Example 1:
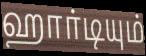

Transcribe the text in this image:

ஹார்டியும்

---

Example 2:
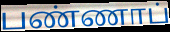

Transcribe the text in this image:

பண்ணாப்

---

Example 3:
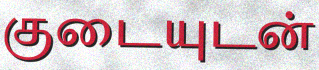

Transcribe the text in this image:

குடையுடன்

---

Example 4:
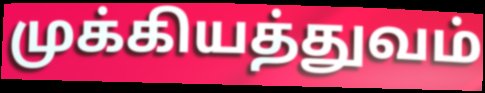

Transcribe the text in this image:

முக்கியத்துவம்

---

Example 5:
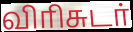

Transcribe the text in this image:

விரிசுடர்